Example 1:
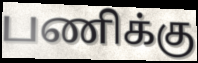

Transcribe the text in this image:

பணிக்கு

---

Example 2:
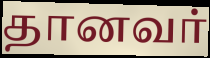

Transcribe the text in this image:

தானவர்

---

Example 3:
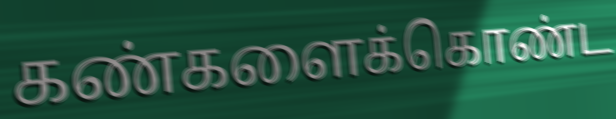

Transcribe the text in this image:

கண்களைக்கொண்ட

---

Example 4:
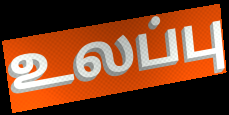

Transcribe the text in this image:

உலப்பு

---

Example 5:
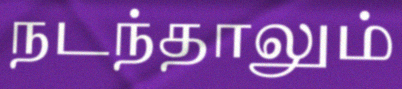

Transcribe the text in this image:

நடந்தாலும்